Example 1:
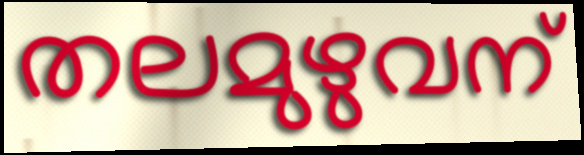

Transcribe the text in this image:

തലമുഴുവന്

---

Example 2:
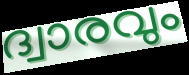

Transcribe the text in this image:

ദ്വാരവും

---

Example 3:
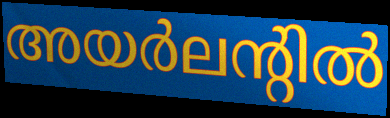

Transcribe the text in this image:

അയർലന്റിൽ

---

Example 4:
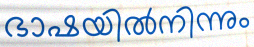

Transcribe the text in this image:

ഭാഷയിൽനിന്നും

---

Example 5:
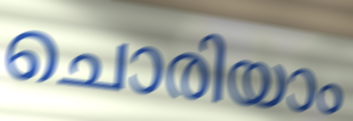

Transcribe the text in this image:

ചൊരിയാം